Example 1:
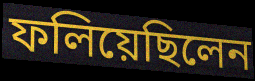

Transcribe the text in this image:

ফলিয়েছিলেন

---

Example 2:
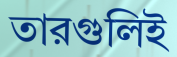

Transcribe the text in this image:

তারগুলিই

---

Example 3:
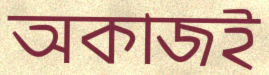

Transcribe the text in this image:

অকাজই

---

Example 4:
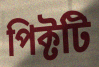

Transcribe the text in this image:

পিক্টটি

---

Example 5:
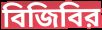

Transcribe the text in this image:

বিজিবির